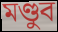
মণ্ডুব